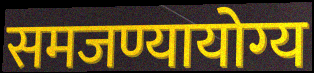
समजण्यायोग्य